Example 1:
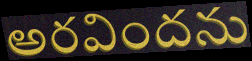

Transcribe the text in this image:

అరవిందను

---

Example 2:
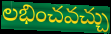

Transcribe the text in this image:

లభించవచ్చు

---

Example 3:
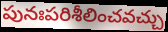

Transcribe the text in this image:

పునఃపరిశీలించవచ్చు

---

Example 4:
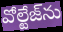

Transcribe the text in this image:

వోల్టేజ్‌ను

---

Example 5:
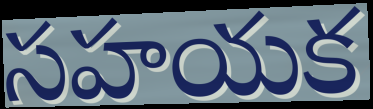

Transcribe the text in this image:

సహయక